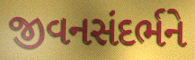
જીવનસંદર્ભને